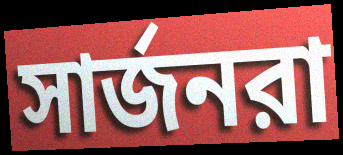
সার্জনরা